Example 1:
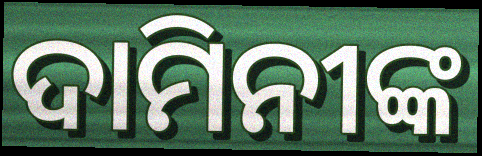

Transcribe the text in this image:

ଦାମିନୀଙ୍କ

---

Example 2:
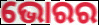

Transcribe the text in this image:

ଭୋରର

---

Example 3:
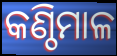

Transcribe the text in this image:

କଣ୍ଠିମାଳ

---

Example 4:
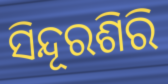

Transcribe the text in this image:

ସିନ୍ଦୂରଶିରି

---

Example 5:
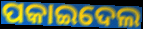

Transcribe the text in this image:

ପକାଇଦେଲ